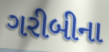
ગરીબીના